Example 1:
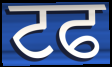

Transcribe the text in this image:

ਟਫ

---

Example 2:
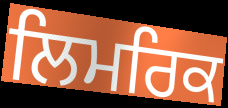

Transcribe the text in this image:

ਲਿਮਰਿਕ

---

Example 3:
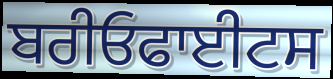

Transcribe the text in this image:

ਬਰੀਓਫਾਈਟਸ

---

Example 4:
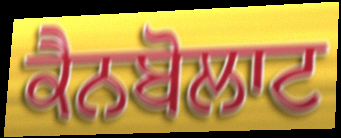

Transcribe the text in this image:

ਕੈਨਬੋਲਾਟ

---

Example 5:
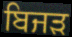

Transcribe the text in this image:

ਬਿਜੜ